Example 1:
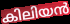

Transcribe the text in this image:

കിലിയൻ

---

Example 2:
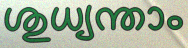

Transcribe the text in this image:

ശുധ്യന്താം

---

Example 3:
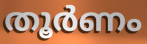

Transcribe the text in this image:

തൂർണം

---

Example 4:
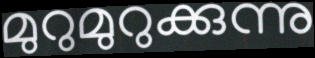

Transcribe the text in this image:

മുറുമുറുക്കുന്നു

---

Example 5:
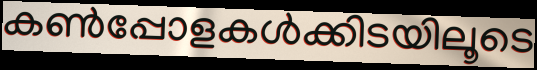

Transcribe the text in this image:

കൺപ്പോളകൾക്കിടയിലൂടെ